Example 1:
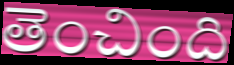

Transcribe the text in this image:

తెంచింది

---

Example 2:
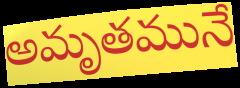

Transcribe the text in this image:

అమృతమునే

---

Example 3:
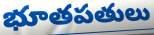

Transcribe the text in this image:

భూతపతులు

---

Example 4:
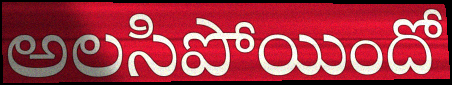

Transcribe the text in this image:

అలసిపోయిందో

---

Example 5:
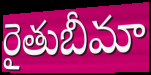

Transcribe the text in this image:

రైతుబీమా